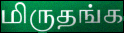
மிருதங்க